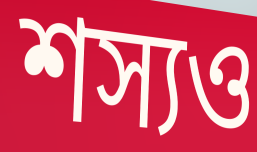
শস্যও